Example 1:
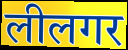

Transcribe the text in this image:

लीलगर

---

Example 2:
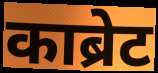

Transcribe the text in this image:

काब्रेट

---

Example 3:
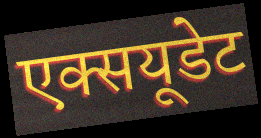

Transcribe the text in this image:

एक्सयूडेट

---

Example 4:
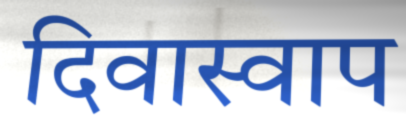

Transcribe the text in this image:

दिवास्वाप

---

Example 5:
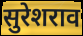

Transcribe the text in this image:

सुरेशराव